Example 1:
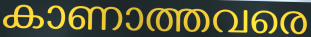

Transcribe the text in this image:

കാണാത്തവരെ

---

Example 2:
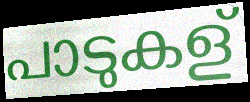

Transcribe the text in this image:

പാടുകള്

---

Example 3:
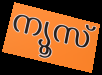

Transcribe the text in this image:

ന്യൂസ്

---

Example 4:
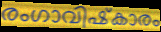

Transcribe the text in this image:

രംഗാവിഷ്‌കാരം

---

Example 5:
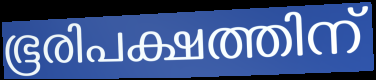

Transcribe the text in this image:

ഭൂരിപക്ഷത്തിന്